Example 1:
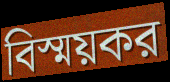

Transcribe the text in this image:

বিস্ময়কর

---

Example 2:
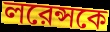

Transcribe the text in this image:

লরেন্সকে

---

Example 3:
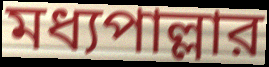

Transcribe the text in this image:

মধ্যপাল্লার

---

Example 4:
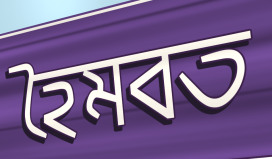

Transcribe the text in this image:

হৈমবত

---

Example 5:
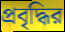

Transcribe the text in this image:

প্রবৃদ্ধির